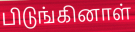
பிடுங்கினாள்